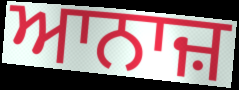
ਆਨਾਜ਼